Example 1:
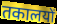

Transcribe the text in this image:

तकालयों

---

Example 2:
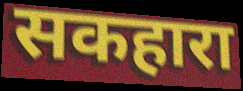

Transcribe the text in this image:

सकहारा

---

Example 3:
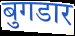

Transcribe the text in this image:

बुगडार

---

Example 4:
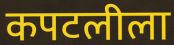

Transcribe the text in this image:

कपटलीला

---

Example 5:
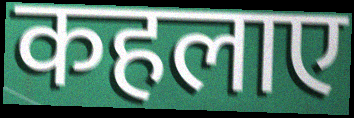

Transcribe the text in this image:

कहलाए